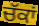
ਚੱਕਾਂ